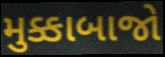
મુક્કાબાજો